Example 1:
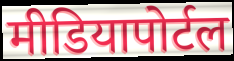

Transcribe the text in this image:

मीडियापोर्टल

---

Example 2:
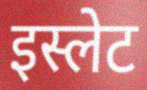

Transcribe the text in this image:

इस्लेट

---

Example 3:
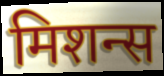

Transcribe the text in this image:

मिशन्स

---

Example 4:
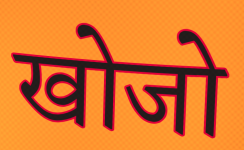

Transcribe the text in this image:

खोजो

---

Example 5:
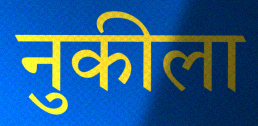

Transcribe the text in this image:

नुकीला